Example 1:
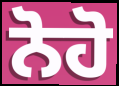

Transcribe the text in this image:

ਨੋਹੋ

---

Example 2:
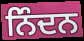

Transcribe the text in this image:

ਨਿੰਦਨ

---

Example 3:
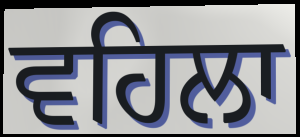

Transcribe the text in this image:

ਵਹਿਲਾ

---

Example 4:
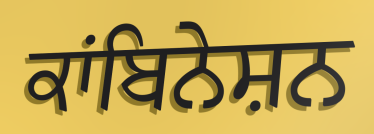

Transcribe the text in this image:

ਕਾਂਬਿਨੇਸ਼ਨ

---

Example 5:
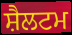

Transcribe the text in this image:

ਸ਼ੈਲਟਮ